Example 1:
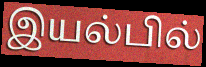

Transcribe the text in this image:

இயல்பில்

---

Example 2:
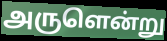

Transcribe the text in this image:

அருளென்று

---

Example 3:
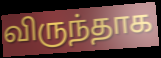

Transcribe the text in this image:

விருந்தாக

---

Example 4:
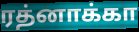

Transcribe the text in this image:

ரத்னாக்கா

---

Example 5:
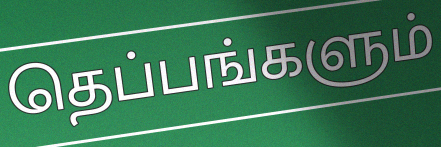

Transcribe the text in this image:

தெப்பங்களும்